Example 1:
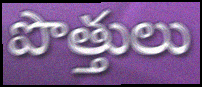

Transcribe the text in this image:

పొత్తులు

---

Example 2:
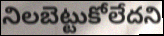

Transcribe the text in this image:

నిలబెట్టుకోలేదని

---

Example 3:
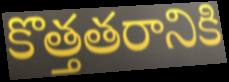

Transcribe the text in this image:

కొత్తతరానికి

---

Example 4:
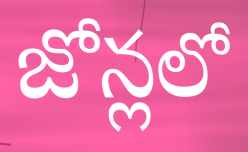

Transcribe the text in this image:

జోన్లలో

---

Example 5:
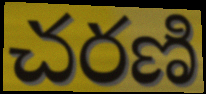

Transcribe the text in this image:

చరణి